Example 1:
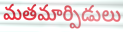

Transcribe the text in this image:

మతమార్పిడులు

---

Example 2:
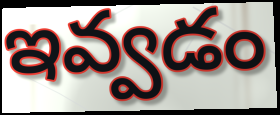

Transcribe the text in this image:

ఇవ్వడం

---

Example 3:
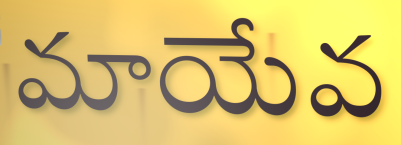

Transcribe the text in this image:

మాయేవ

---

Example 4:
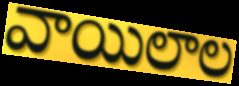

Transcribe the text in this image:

వాయిలాల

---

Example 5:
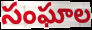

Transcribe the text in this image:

సంఘాల